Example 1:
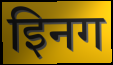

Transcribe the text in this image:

इिनग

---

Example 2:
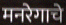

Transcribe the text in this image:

मनरेगाचे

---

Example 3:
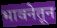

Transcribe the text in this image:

भावनेतून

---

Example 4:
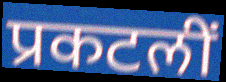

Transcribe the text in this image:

प्रकटलीं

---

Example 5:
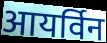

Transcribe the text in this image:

आयर्विन